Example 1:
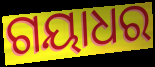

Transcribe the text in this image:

ଗୟାଧର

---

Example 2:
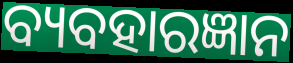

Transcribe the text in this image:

ବ୍ୟବହାରଜ୍ଞାନ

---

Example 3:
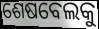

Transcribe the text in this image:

ଶେଷବେଲକୁ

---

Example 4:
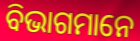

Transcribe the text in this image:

ବିଭାଗମାନେ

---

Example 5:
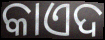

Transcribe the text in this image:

କାଏଦ